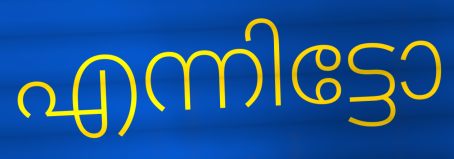
എന്നിട്ടോ